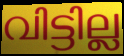
വിട്ടില്ല